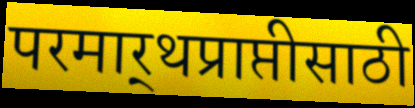
परमार्थप्राप्तीसाठी